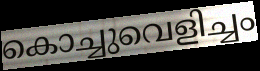
കൊച്ചുവെളിച്ചം